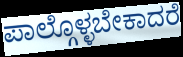
ಪಾಲ್ಗೊಳ್ಳಬೇಕಾದರೆ